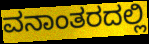
ವನಾಂತರದಲ್ಲಿ